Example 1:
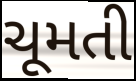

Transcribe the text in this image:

ચૂમતી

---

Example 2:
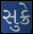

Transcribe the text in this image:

સુક્રે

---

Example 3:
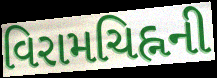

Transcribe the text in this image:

વિરામચિહ્નની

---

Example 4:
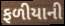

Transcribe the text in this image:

ફળીયાની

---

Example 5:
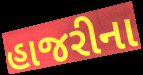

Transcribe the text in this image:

હાજરીના